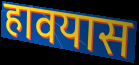
हावयास